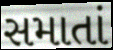
સમાતાં